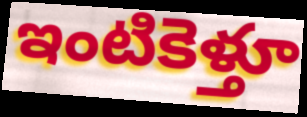
ఇంటికెళ్తూ